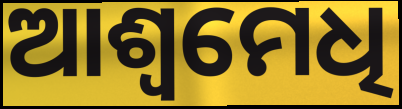
ଆଶ୍ୱମେଧି